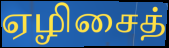
ஏழிசைத்